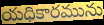
యధికారమును